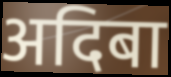
अदिबा